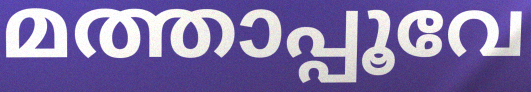
മത്താപ്പൂവേ